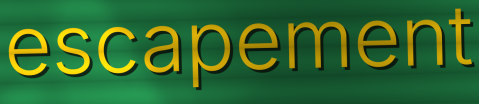
escapement